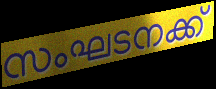
സംഘടനക്ക്